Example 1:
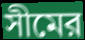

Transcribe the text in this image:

সীমের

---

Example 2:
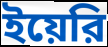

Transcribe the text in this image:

ইয়েরি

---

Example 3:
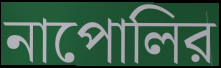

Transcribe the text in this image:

নাপোলির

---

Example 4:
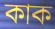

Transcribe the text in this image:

কাক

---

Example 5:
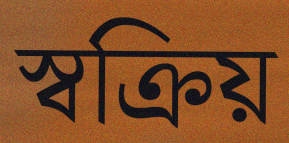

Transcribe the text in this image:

স্বক্রিয়